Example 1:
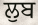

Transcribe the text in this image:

ਲੁਬ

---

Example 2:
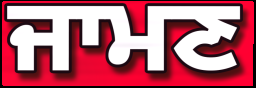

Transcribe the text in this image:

ਜਾਮਣ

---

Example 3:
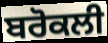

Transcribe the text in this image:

ਬਰੋਕਲੀ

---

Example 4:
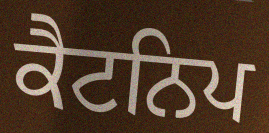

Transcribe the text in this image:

ਕੈਟਨਿਪ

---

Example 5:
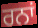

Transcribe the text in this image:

ਰਨਾਂ